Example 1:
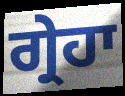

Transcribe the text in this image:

ਗ੍ਰੇਹਾ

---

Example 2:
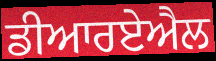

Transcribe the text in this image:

ਡੀਆਰਏਐਲ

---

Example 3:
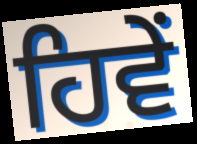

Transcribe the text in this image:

ਹਿਵੇਂ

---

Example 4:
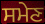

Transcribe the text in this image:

ਸਮੇਣ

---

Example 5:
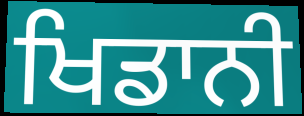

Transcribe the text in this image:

ਖਿਡਾਨੀ